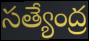
సత్యేంద్ర